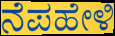
ನೆಪಹೇಳಿ